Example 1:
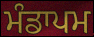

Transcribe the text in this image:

ਮੰਡਾਪਮ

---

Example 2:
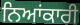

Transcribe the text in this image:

ਨਿਆਂਕਾਰੀ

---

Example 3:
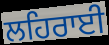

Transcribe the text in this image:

ਲਹਿਰਾਈ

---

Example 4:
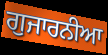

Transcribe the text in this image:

ਗੁਜਾਰਨੀਆ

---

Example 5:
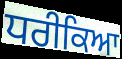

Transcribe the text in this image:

ਧਰੀਕਿਆ